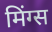
मिंग्स